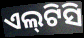
ଏଲ୍‌ଟିସି